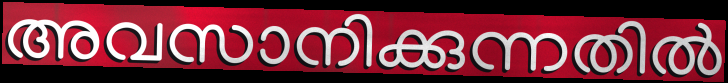
അവസാനിക്കുന്നതിൽ